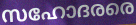
സഹോദരരെ